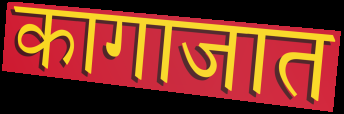
कागाजात